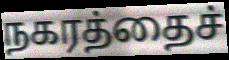
நகரத்தைச்